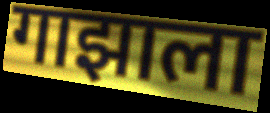
गाझाला